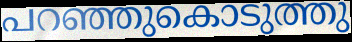
പറഞ്ഞുകൊടുത്തു